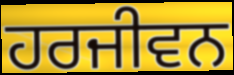
ਹਰਜੀਵਨ